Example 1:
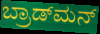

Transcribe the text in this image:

ಬ್ರಾಡ್‌ಮನ್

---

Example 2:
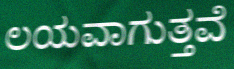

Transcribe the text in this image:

ಲಯವಾಗುತ್ತವೆ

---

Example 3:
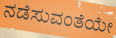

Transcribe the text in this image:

ನಡೆಸುವಂತೆಯೇ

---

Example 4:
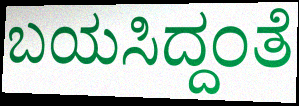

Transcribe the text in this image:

ಬಯಸಿದ್ದಂತೆ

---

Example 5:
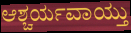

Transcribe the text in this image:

ಆಶ್ಚರ್ಯವಾಯ್ತು